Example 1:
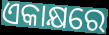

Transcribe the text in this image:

ଏକାକ୍ଷରେ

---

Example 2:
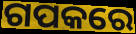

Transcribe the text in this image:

ଗପକରେ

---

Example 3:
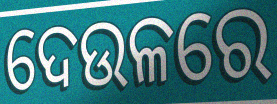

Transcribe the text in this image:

ଦେଉଳରେ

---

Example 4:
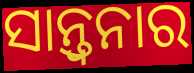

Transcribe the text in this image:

ସାନ୍ତ୍ବନାର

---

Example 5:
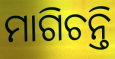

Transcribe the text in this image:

ମାଗିଚନ୍ତି